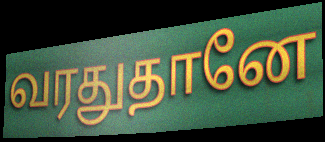
வரதுதானே